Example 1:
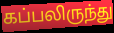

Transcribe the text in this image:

கப்பலிருந்து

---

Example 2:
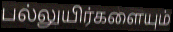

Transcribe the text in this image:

பல்லுயிர்களையும்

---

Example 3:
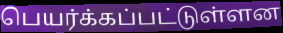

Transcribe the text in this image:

பெயர்க்கப்பட்டுள்ளன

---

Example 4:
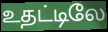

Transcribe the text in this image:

உதட்டிலே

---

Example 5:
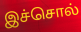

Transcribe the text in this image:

இச்சொல்